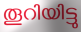
തൂറിയിട്ടു